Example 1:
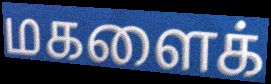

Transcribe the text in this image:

மகளைக்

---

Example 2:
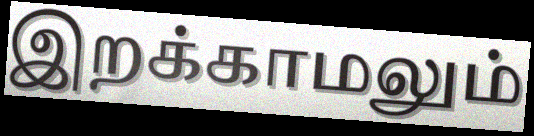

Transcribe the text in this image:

இறக்காமலும்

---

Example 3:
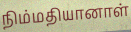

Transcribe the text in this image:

நிம்மதியானாள்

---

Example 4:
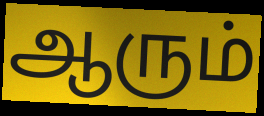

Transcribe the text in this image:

ஆரும்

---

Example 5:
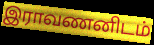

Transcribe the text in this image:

இராவணனிடம்